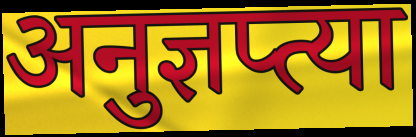
अनुज्ञप्त्या